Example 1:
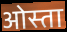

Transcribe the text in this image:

ओस्ता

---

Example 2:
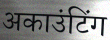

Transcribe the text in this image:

अकाउंटिंग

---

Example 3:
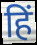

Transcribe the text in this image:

हिं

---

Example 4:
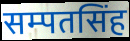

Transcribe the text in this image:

सम्पतसिंह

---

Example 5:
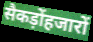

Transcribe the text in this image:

सैकड़ोंहजारों